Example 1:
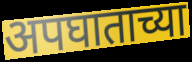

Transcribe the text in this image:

अपघाताच्या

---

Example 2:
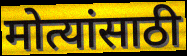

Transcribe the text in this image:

मोत्यांसाठी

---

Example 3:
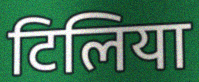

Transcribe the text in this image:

टिलिया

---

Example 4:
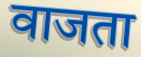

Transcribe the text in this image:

वाजता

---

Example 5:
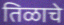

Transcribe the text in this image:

तिळाचे